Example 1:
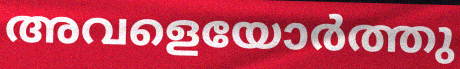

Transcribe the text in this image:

അവളെയോർത്തു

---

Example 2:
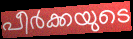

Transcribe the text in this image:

പീർക്കയുടെ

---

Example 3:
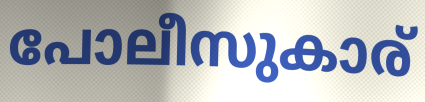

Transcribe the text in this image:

പോലീസുകാര്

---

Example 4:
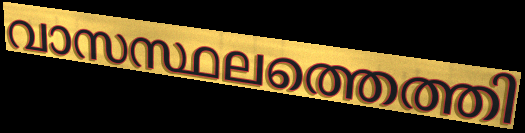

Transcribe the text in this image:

വാസസ്ഥലത്തെത്തി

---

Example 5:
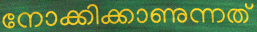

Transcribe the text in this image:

നോക്കിക്കാണുന്നത്